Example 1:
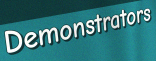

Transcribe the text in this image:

Demonstrators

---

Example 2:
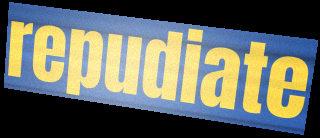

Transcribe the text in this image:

repudiate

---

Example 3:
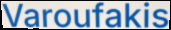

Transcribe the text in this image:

Varoufakis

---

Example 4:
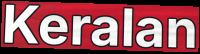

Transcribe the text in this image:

Keralan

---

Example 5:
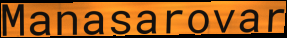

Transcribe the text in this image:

Manasarovar